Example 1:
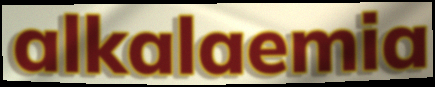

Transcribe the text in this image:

alkalaemia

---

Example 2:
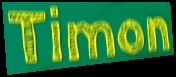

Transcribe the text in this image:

Timon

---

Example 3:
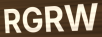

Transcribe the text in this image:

RGRW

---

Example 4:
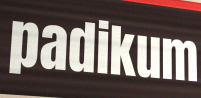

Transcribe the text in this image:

padikum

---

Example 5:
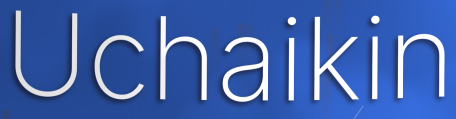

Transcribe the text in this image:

Uchaikin